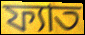
ফ্যাত